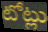
టోట్లు